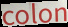
colon